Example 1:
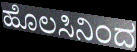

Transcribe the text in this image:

ಹೊಲಸಿನಿಂದ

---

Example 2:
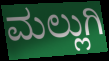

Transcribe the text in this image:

ಮಲ್ಲುಗಿ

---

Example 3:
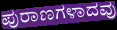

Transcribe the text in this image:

ಪುರಾಣಗಳಾದವು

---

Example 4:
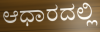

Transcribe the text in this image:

ಆಧಾರದಲ್ಲಿ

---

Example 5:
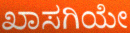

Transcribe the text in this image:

ಖಾಸಗಿಯೇ